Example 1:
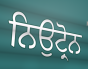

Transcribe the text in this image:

ਨਿਉਟ੍ਰੋਨ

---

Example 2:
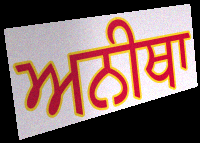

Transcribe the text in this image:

ਅਨੀਥਾ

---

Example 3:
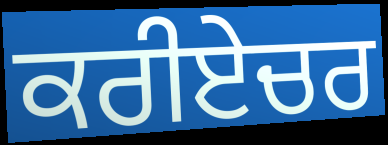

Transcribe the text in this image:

ਕਰੀਏਚਰ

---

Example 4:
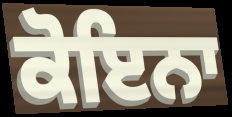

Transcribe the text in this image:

ਕੋਇਨਾ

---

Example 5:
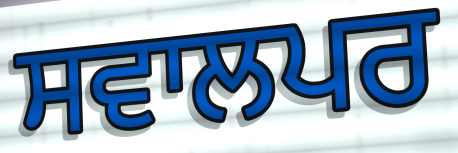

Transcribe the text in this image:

ਸਵਾਲਪਰ